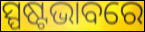
ସ୍ପଷ୍ଟଭାବରେ